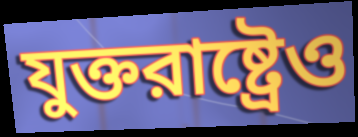
যুক্তরাষ্ট্রেও